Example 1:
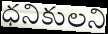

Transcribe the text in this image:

ధనికులని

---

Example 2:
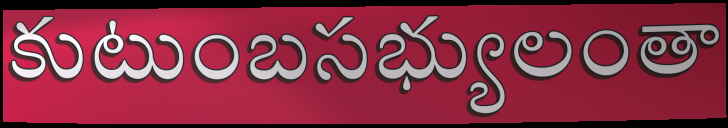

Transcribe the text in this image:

కుటుంబసభ్యులంతా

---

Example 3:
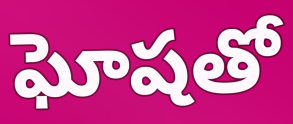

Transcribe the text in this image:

ఘోషతో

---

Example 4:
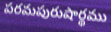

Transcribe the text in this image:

పరమపురుషార్థము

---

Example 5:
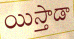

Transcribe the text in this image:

యిస్తాడా